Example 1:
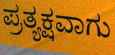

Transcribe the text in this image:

ಪ್ರತ್ಯಕ್ಷವಾಗು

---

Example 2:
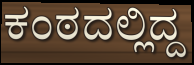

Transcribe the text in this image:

ಕಂಠದಲ್ಲಿದ್ದ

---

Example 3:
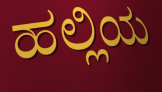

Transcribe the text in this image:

ಹಲ್ಲಿಯ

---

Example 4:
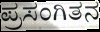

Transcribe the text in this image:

ಪ್ರಸಂಗಿತನ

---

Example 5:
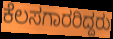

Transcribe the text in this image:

ಕೆಲಸಗಾರರಿದ್ದರು